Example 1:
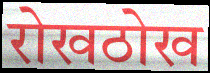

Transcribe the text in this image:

रोखठोख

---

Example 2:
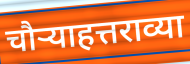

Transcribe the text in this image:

चौऱ्याहत्तराव्या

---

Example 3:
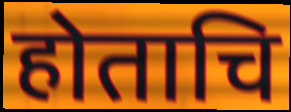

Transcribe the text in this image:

होताचि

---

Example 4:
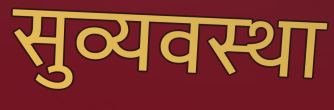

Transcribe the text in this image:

सुव्यवस्था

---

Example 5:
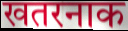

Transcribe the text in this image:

खतरनाक